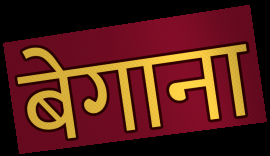
बेगाना